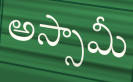
అస్సామీ